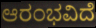
ಆರಂಭವಿದೆ